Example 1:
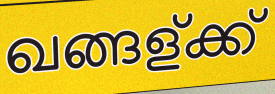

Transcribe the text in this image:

ഖങ്ങള്ക്ക്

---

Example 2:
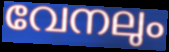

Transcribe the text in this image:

വേനലും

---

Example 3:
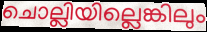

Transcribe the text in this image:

ചൊല്ലിയില്ലെങ്കിലും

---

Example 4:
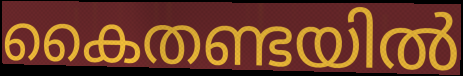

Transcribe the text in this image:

കൈതണ്ടയിൽ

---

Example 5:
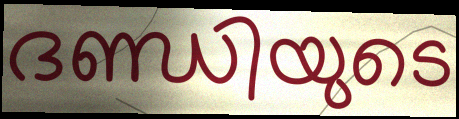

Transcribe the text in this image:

ദണ്ഡിയുടെ